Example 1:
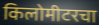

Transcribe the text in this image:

किलोमीटरचा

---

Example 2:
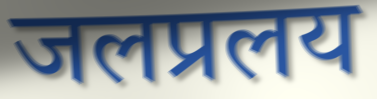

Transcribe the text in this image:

जलप्रलय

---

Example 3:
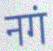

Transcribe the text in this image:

नगं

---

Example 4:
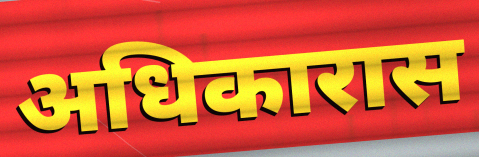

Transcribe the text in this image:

अधिकारास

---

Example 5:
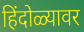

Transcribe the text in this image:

हिंदोळ्यावर